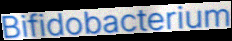
Bifidobacterium